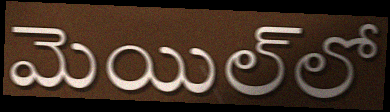
మెయిల్‌లో